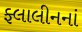
ફ્લાલીનનાં